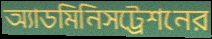
অ্যাডমিনিসট্রেশনের